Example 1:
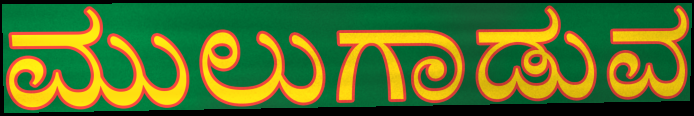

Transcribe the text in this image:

ಮುಲುಗಾಡುವ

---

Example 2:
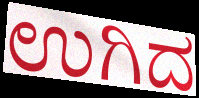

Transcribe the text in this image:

ಉಗಿದ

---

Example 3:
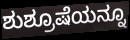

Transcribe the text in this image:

ಶುಶ್ರೂಷೆಯನ್ನೂ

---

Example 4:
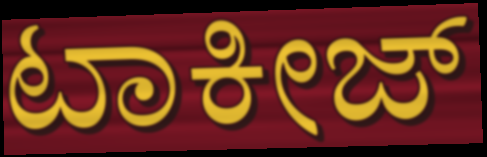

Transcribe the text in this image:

ಟಾಕೀಜ್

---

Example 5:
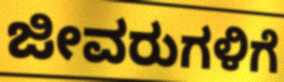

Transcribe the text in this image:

ಜೀವರುಗಳಿಗೆ